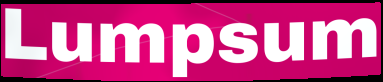
Lumpsum